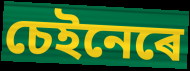
চেইনেৰে